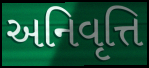
અનિવૃત્તિ